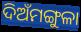
ଦିଅଁମଙ୍ଗୁଳା